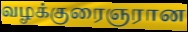
வழக்குரைஞரான